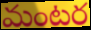
మంటర